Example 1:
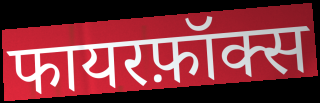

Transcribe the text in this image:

फायरफ़ॉक्स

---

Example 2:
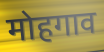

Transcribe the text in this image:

मोहगाव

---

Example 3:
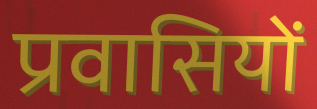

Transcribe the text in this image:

प्रवासियों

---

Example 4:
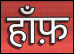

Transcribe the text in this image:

हाँफ़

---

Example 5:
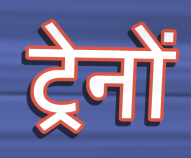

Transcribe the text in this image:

ट्रेनों